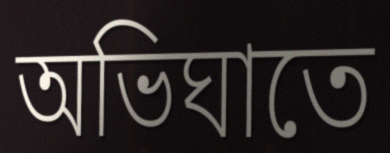
অভিঘাতে